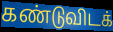
கண்டுவிடக்